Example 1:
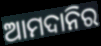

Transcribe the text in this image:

ଆମଦାନିର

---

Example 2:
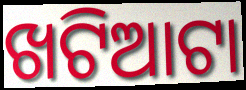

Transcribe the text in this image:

ଖଟିଆଟା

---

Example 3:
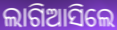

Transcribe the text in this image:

ଲାଗିଆସିଲେ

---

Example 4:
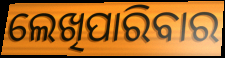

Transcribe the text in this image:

ଲେଖିପାରିବାର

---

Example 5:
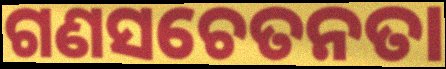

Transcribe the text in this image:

ଗଣସଚେତନତା